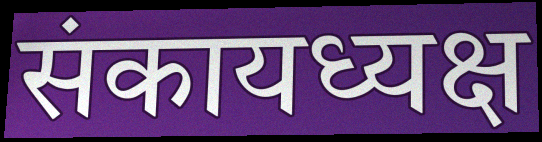
संकायध्यक्ष